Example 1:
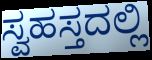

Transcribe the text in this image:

ಸ್ವಹಸ್ತದಲ್ಲಿ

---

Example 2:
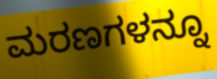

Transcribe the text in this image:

ಮರಣಗಳನ್ನೂ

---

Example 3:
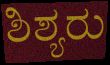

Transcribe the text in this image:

ಶಿಶ್ಯರು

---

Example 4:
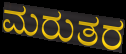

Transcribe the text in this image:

ಮರುತರ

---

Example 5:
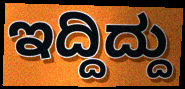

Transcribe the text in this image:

ಇದ್ದಿದ್ದು